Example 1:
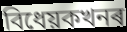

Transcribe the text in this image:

বিধেয়কখনৰ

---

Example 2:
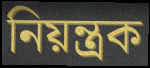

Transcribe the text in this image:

নিয়ন্ত্ৰক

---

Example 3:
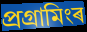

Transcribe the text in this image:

প্ৰগ্ৰামিংৰ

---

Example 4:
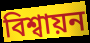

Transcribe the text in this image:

বিশ্বায়ন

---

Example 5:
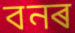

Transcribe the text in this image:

বনৰ